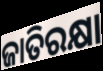
ଜାତିରକ୍ଷା